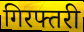
गिरफ्तरी